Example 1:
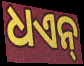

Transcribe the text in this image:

ଧଏନ୍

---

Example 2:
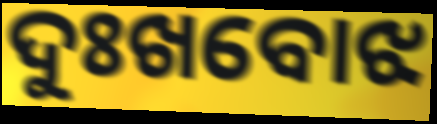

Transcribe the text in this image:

ଦୁଃଖବୋଝ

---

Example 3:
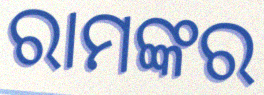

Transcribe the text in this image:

ରାମଙ୍କର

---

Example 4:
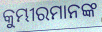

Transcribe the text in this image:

କୁମ୍ଭୀରମାନଙ୍କ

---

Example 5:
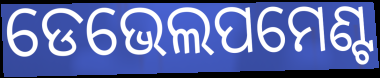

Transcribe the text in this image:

ଡେଭେଲପମେଣ୍ଟ